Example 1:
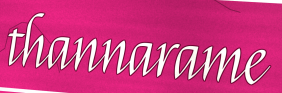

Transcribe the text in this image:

thannarame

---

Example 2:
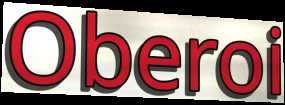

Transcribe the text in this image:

Oberoi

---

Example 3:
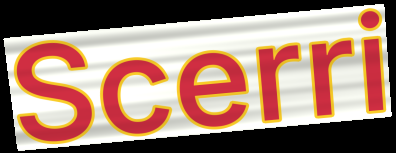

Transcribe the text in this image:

Scerri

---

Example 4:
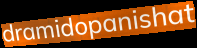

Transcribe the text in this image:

dramidopanishat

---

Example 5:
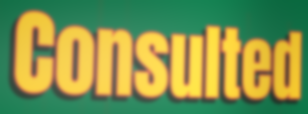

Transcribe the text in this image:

Consulted